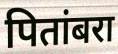
पितांबरा